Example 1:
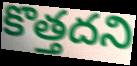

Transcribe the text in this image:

కొత్తదని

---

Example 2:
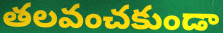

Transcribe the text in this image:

తలవంచకుండా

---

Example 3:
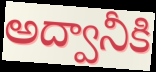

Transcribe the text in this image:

అద్వానీకి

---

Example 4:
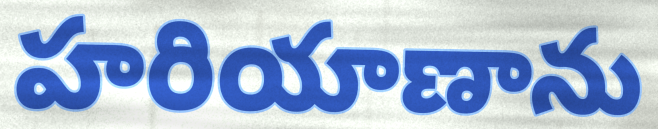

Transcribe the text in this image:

హరియాణాను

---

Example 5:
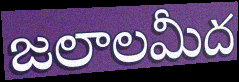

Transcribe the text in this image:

జలాలమీద